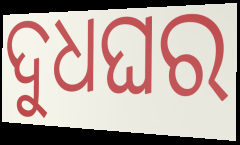
ଦୁଧଘର